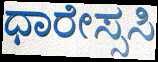
ಧಾರೇಸ್ಸಸಿ